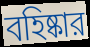
বহিষ্কার